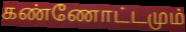
கண்ணோட்டமும்